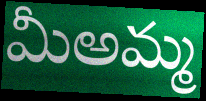
మీఅమ్మ